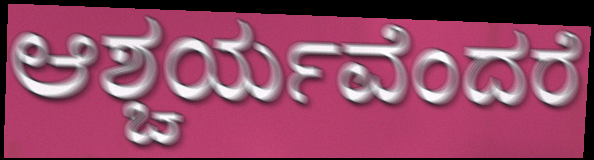
ಆಶ್ಚರ್ಯವೆಂದರೆ